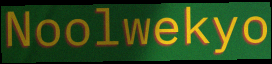
Noolwekyo